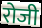
रोजी